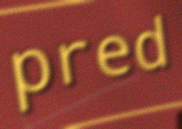
pred